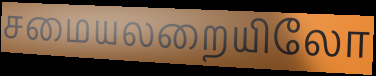
சமையலறையிலோ